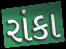
રાંકા